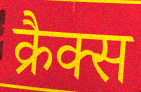
क्रैक्स